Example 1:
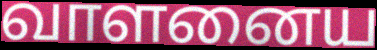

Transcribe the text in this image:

வாளனைய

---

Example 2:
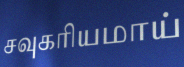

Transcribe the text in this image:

சவுகரியமாய்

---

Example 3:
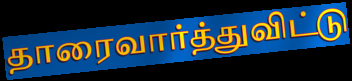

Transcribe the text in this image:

தாரைவார்த்துவிட்டு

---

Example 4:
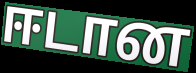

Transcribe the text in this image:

ஈடான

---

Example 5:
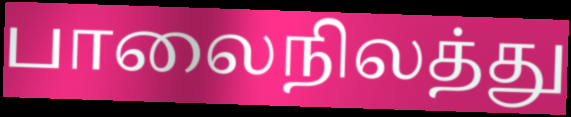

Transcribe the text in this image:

பாலைநிலத்து